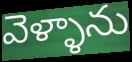
వెళ్ళాను